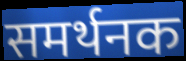
समर्थनक